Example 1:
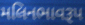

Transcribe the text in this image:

મલિનભાવરૂપ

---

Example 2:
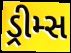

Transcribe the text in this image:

ડ્રીમ્સ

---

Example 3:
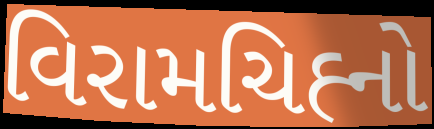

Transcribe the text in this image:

વિરામચિહ્‍નો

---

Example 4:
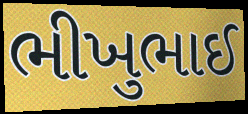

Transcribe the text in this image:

ભીખુભાઈ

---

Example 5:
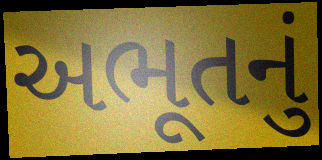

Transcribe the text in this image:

અભૂતનું